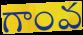
గాంవ